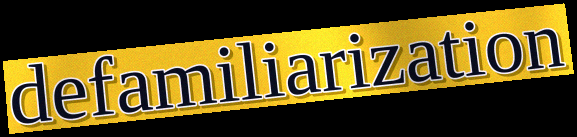
defamiliarization